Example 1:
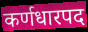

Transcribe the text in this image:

कर्णधारपद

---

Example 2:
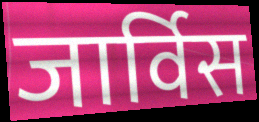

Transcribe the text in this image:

जार्विस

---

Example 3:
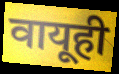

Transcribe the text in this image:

वायूही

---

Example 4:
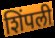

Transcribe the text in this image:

शिंपली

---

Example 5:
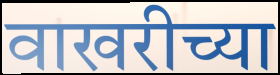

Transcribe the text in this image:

वाखरीच्या